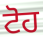
ਟੋਹ